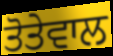
ਤੋਤੇਵਾਲ